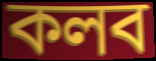
কলব